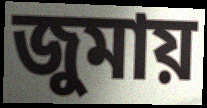
জুমায়